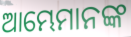
ଆମ୍ଭେମାନଙ୍କ